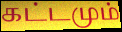
கட்டமும்